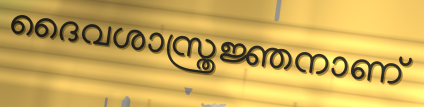
ദൈവശാസ്ത്രജ്ഞനാണ്